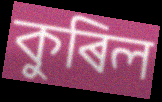
কুৰিল